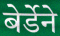
बेर्डेने